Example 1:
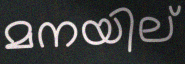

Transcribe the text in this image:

മനയില്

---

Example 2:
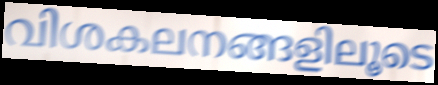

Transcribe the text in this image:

വിശകലനങ്ങളിലൂടെ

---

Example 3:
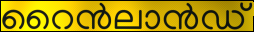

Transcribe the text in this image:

റൈൻലാൻഡ്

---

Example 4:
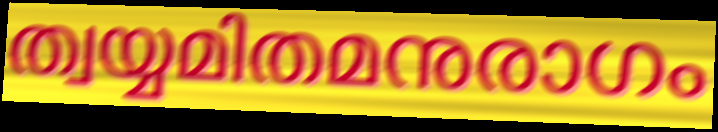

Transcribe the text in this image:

ത്വയ്യമിതമനുരാഗം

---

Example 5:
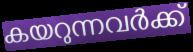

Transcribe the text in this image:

കയറുന്നവർക്ക്